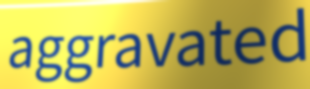
aggravated